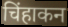
चिंहाकन